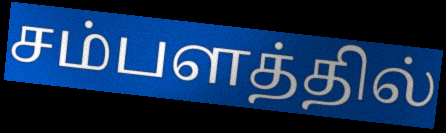
சம்பளத்தில்